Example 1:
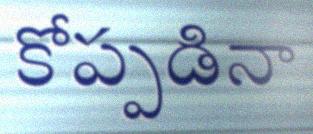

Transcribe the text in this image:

కోప్పడినా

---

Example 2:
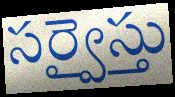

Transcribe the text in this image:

సర్వైస్తు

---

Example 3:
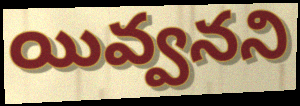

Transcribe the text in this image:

యివ్వనని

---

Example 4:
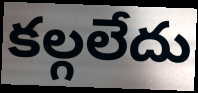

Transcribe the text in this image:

కల్గలేదు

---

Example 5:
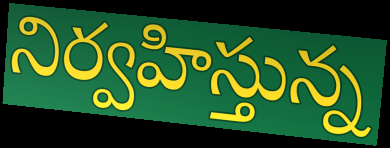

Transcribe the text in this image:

నిర్వహిస్తున్న